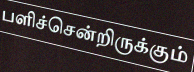
பளிச்சென்றிருக்கும்